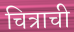
चित्राची